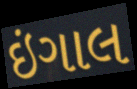
ઇંગાલ